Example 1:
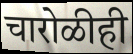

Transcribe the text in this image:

चारोळीही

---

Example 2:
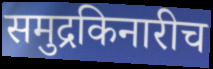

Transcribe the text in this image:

समुद्रकिनारीच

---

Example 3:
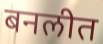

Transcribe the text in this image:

बनलीत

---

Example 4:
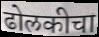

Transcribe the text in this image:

ढोलकीचा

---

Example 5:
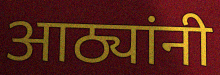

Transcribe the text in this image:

आठ्यांनी